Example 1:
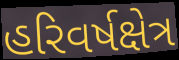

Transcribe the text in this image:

હરિવર્ષક્ષેત્ર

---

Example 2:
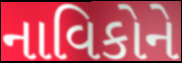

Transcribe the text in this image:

નાવિકોને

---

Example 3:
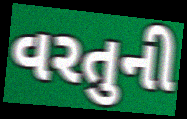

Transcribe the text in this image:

વરતુની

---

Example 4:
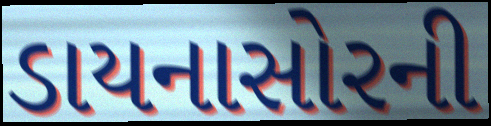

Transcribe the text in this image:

ડાયનાસોરની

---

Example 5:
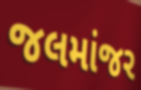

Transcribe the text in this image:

જલમાંજર